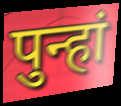
पुन्हां